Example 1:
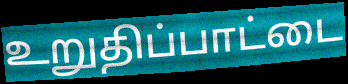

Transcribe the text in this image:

உறுதிப்பாட்டை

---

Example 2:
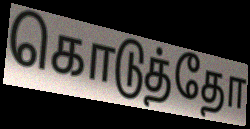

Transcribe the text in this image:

கொடுத்தோ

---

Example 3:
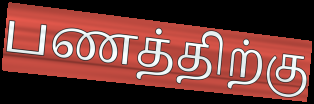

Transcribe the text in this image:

பணத்திற்கு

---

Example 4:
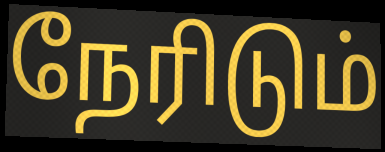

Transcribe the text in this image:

நேரிடும்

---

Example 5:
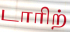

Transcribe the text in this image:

டாரிற்